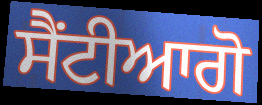
ਸੈਂਟੀਆਗੋ